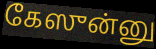
கேஸுன்னு